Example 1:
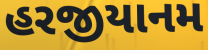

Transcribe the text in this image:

હરજીયાનમ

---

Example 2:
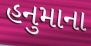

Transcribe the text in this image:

હનુમાના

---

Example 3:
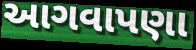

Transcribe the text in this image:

આગવાપણા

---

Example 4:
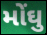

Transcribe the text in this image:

મોંઘુ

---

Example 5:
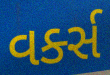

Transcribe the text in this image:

વર્ક્સ